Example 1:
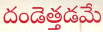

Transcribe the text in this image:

దండెత్తడమే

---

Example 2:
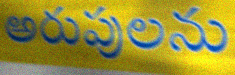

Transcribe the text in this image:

అరుపులను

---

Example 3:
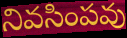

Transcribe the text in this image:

నివసింపవు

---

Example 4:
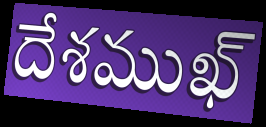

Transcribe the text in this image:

దేశముఖ్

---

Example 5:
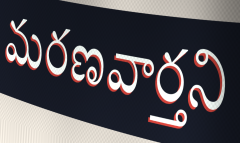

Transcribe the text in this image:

మరణవార్తని